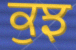
ਕੁਝ